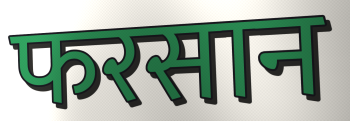
फरसान